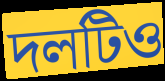
দলটিও